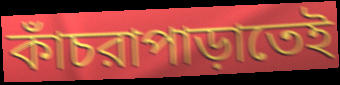
কাঁচরাপাড়াতেই